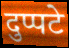
दुप्पटे